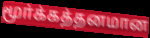
மூர்க்கத்தனமான